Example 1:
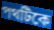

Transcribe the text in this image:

পথটিকে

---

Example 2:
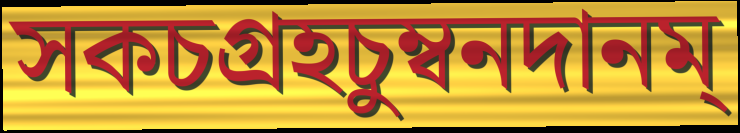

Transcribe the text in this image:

সকচগ্রহচুম্বনদানম্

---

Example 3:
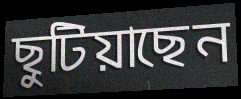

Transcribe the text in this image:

ছুটিয়াছেন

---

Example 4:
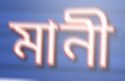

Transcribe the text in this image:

মানী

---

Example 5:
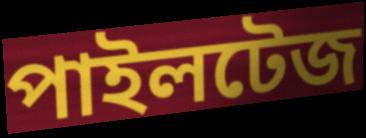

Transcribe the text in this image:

পাইলটেজ